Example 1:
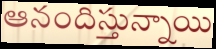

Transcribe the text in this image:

ఆనందిస్తున్నాయి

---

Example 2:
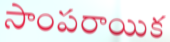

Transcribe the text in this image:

సాంపరాయిక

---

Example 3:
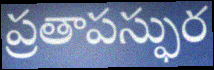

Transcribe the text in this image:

ప్రతాపస్ఫుర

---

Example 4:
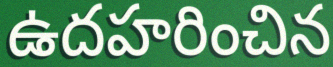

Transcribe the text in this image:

ఉదహరించిన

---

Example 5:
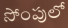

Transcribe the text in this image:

సోంపులో